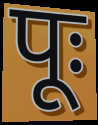
पूः